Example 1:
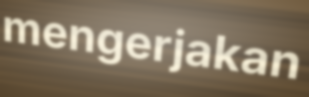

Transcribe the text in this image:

mengerjakan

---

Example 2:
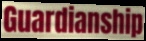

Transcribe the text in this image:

Guardianship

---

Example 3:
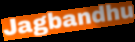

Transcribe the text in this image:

Jagbandhu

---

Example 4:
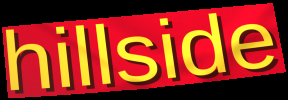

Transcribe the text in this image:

hillside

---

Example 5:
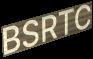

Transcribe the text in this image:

BSRTC